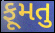
ફૂમતુ